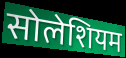
सोलेशियम